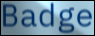
Badge